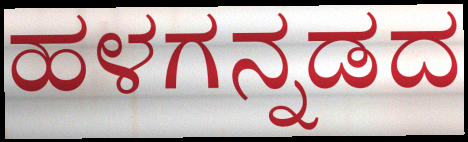
ಹಳಗನ್ನಡದ